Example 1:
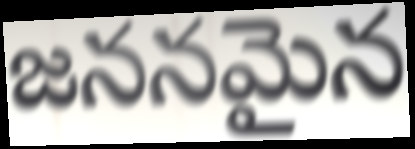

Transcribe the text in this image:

జననమైన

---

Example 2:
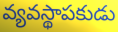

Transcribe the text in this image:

వ్యవస్థాపకుడు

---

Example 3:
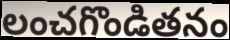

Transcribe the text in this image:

లంచగొండితనం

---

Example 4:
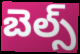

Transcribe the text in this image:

బెల్స్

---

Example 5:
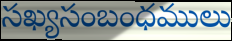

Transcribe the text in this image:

సఖ్యసంబంధములు